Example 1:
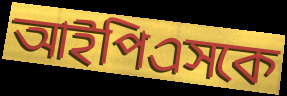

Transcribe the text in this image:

আইপিএসকে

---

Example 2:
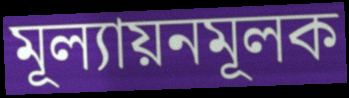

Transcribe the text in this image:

মূল্যায়নমূলক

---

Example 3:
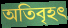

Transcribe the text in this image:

অতিবৃহৎ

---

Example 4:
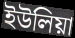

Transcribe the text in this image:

ইউলিয়া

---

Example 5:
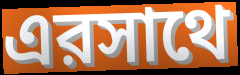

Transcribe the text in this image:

এরসাথে